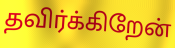
தவிர்க்கிறேன்